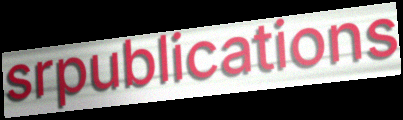
srpublications